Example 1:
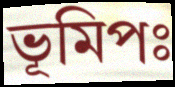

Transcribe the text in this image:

ভূমিপঃ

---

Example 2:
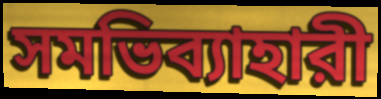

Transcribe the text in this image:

সমভিব্যাহারী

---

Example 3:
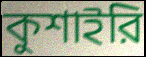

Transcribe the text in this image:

কুশাইরি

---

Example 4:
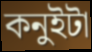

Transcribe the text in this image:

কনুইটা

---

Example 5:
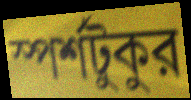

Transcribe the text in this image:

স্পর্শটুকুর